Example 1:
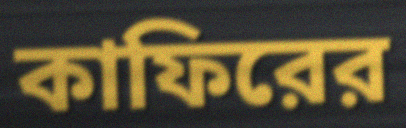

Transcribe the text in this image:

কাফিরের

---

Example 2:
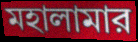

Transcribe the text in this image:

মহালামার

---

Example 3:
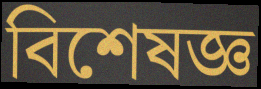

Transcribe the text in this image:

বিশেষজ্ঞ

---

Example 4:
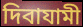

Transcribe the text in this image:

দিবাযামী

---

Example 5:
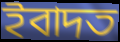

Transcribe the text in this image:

ইবাদত